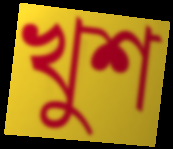
খুশ